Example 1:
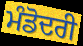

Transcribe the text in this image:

ਮੰਡੋਦਰੀ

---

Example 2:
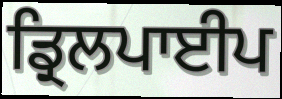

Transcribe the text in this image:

ਡ੍ਰਿਲਪਾਈਪ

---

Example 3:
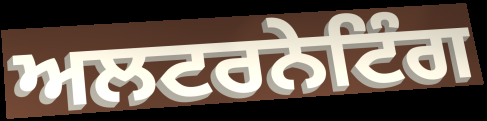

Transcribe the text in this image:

ਅਲਟਰਨੇਟਿੰਗ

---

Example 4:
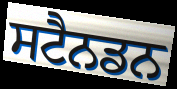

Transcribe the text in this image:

ਸਟੈਨਡਨ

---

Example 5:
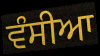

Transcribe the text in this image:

ਵੰਸੀਆ